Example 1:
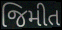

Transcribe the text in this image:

જિમીત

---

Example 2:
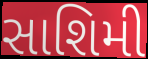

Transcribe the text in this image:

સાશિમી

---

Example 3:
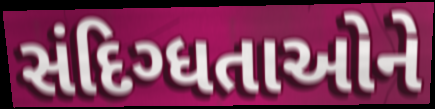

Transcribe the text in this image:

સંદિગ્ધતાઓને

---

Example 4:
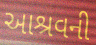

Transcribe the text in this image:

આશ્રવની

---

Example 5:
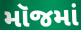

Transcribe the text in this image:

મૉજમાં